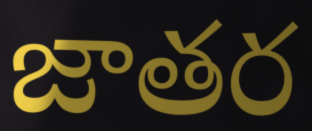
జాతర